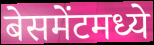
बेसमेंटमध्ये